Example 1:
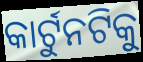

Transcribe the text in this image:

କାର୍ଟୁନଟିକୁ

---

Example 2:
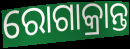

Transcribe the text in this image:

ରୋଗାକ୍ରାନ୍ତ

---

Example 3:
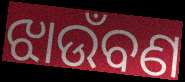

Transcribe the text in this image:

ଝାଉଁବଣ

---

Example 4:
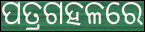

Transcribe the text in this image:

ପତ୍ରଗହଳରେ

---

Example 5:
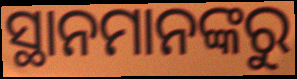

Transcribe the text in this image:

ସ୍ଥାନମାନଙ୍କରୁ